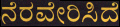
ನೆರವೇರಿಸಿದೆ